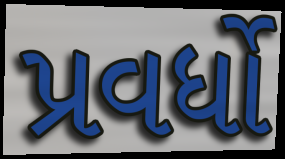
પ્રવર્ધો